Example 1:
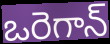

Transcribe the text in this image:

ఒరెగాన్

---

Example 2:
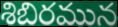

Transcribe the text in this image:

శిబిరమున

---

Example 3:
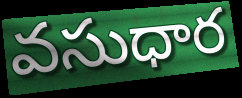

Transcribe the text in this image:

వసుధార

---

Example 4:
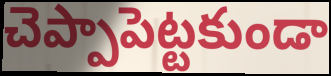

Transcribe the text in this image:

చెప్పాపెట్టకుండా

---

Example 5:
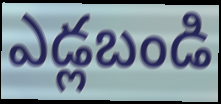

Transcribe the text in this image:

ఎడ్లబండి